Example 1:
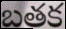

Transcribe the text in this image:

బతక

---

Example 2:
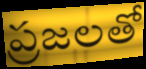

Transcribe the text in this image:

ప్రజలతో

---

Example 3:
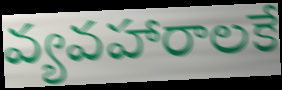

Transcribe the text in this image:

వ్యవహారాలకే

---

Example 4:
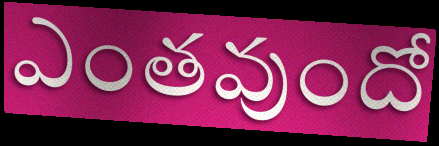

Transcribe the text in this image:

ఎంతవుందో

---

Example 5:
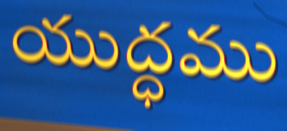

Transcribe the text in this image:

యుద్ధము